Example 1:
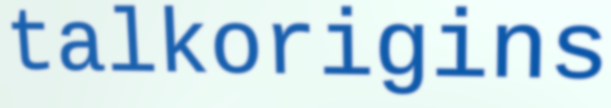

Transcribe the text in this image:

talkorigins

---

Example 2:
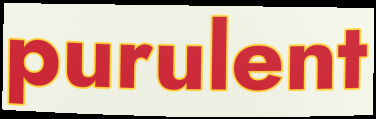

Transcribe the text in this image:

purulent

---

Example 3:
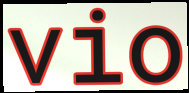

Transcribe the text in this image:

vio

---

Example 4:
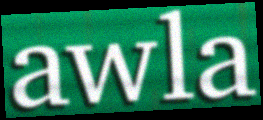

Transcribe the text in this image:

awla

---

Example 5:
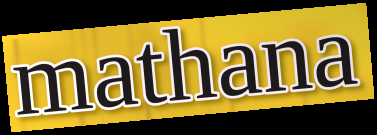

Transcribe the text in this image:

mathana